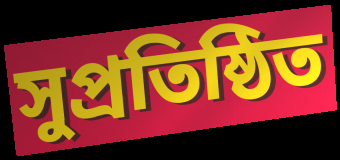
সুপ্রতিষ্ঠিত